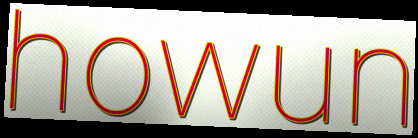
howun